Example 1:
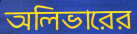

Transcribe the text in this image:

অলিভারের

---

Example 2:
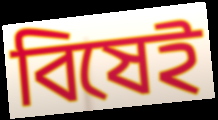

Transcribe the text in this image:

বিষেই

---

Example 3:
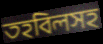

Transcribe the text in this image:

তহবিলসহ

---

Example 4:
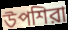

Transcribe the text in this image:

উপশিরা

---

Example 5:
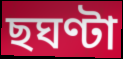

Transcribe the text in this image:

ছঘণ্টা